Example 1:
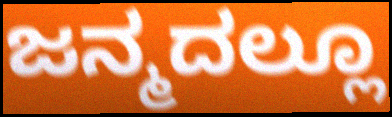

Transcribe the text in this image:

ಜನ್ಮದಲ್ಲೂ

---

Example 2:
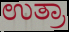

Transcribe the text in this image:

ಉತ್ರಾ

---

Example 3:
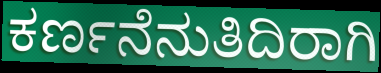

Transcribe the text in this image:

ಕರ್ಣನೆನುತಿದಿರಾಗಿ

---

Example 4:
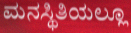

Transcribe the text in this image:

ಮನಸ್ಥಿತಿಯಲ್ಲೂ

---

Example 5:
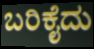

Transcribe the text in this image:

ಬರಿಕೈದು